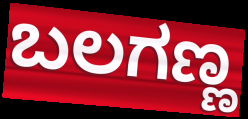
ಬಲಗಣ್ಣ